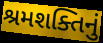
શ્રમશક્તિનું